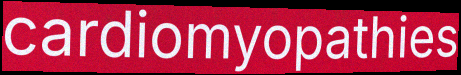
cardiomyopathies